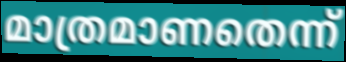
മാത്രമാണതെന്ന്